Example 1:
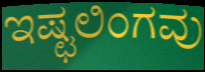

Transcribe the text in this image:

ಇಷ್ಟಲಿಂಗವು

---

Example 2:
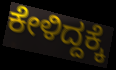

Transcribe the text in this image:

ಕೇಳಿದ್ದಕ್ಕೆ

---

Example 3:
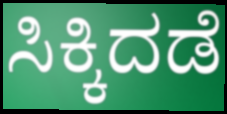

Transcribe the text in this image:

ಸಿಕ್ಕಿದಡೆ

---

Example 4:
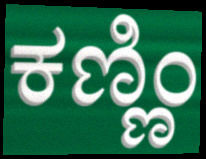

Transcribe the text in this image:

ಕಣ್ಣಿಂ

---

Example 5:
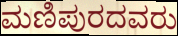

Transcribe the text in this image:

ಮಣಿಪುರದವರು